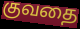
குவதை